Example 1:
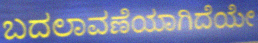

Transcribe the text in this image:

ಬದಲಾವಣೆಯಾಗಿದೆಯೇ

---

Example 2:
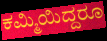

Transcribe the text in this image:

ಕಮ್ಮಿಯಿದ್ದರೂ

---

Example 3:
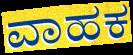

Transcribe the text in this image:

ವಾಹಕ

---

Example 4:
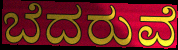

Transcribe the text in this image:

ಬೆದರುವೆ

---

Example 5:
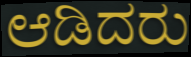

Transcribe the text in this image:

ಆಡಿದರು